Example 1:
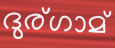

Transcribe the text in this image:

ദുര്ഗാമ്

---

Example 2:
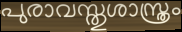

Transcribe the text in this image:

പുരാവസ്തുശാസ്ത്രം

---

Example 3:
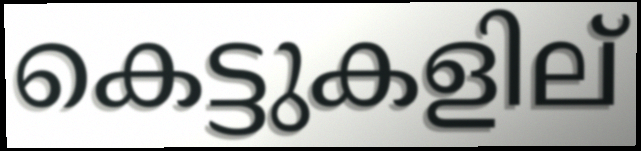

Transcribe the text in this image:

കെട്ടുകളില്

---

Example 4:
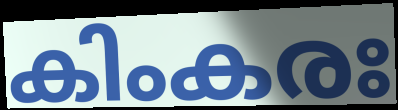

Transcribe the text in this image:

കിംകരഃ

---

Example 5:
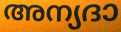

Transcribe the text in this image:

അന്യദാ